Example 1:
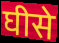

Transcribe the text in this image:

घीसे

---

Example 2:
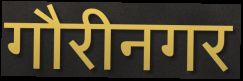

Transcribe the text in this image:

गौरीनगर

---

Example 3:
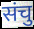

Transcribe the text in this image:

संचु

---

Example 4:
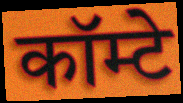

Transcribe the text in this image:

कॉम्टे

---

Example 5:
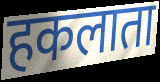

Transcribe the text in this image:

हकलाता